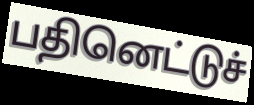
பதினெட்டுச்